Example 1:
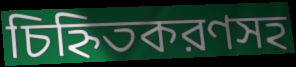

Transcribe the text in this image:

চিহ্নিতকরণসহ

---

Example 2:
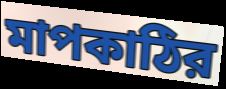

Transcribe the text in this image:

মাপকাঠির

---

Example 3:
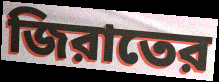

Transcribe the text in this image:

জিরাতের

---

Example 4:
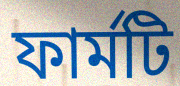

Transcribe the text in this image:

ফার্মটি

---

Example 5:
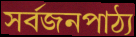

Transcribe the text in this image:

সর্বজনপাঠ্য